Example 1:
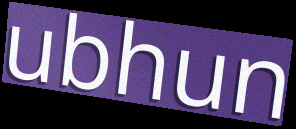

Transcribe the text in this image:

ubhun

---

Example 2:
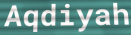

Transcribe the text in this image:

Aqdiyah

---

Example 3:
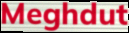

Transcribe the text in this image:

Meghdut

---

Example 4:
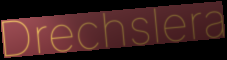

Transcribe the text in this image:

Drechslera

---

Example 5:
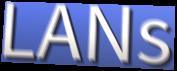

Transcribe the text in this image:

LANs